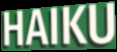
HAIKU